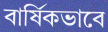
বার্ষিকভাবে